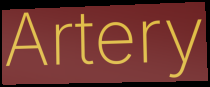
Artery